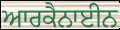
ਆਰਕੈਨਾਈਨ